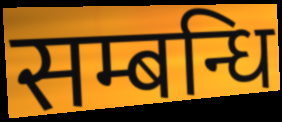
सम्बन्धि